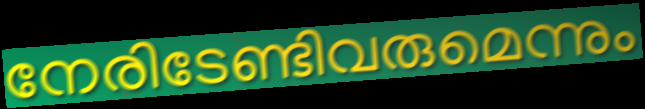
നേരിടേണ്ടിവരുമെന്നും